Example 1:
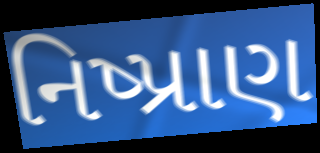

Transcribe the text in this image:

નિષ્પ્રાણ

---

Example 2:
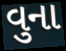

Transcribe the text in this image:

વુના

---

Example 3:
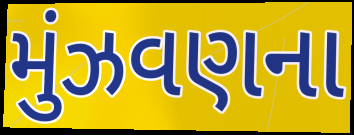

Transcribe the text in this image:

મુંઝવણના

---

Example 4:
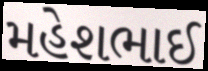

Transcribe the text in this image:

મહેશભાઈ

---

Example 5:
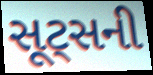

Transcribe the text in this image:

સૂટ્સની